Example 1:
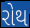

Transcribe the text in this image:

રોથ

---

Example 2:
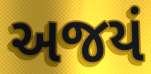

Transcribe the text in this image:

અજયં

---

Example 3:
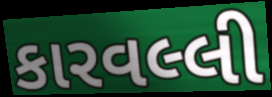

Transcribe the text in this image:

કારવલ્લી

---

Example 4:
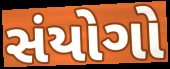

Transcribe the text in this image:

સંયોગો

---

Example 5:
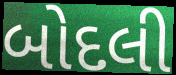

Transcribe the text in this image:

બોદલી